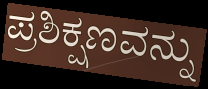
ಪ್ರಶಿಕ್ಷಣವನ್ನು